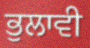
ਭੁਲਾਵੀ